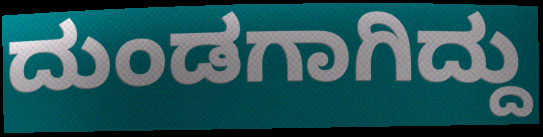
ದುಂಡಗಾಗಿದ್ದು